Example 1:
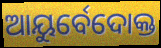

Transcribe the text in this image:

ଆୟୁର୍ବେଦୋକ୍ତ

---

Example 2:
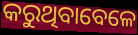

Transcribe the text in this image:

କରୁଥିବାବେଳେ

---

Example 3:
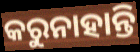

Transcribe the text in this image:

କରୁନାହାନ୍ତି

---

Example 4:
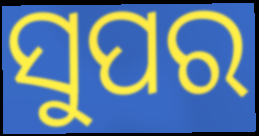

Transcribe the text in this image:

ସୁପର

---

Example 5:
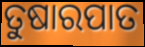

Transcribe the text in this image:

ତୁଷାରପାତ